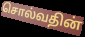
சொல்வதின்